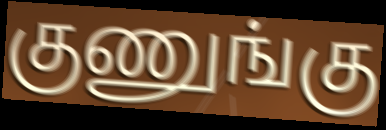
குணுங்கு